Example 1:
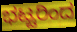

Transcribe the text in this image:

ಭಟ್ಟರಿಂದ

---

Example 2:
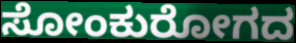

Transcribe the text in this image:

ಸೋಂಕುರೋಗದ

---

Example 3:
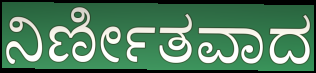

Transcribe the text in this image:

ನಿರ್ಣೀತವಾದ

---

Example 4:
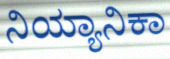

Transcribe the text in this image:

ನಿಯ್ಯಾನಿಕಾ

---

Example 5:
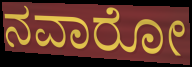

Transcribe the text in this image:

ನವಾರೋ